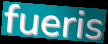
fueris